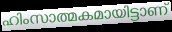
ഹിംസാത്മകമായിട്ടാണ്